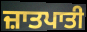
ਜ਼ਾਤਪਾਤੀ